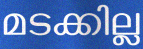
മടക്കില്ല